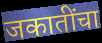
जकातींचा